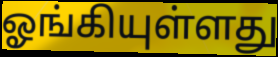
ஓங்கியுள்ளது